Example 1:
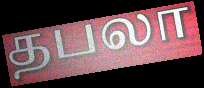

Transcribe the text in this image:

தபலா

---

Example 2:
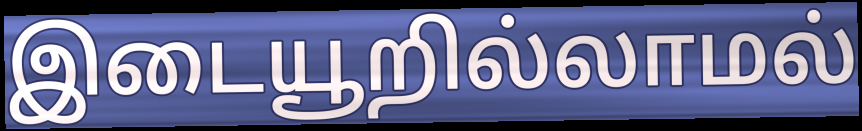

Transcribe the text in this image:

இடையூறில்லாமல்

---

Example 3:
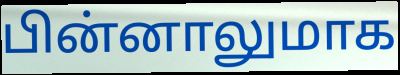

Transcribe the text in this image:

பின்னாலுமாக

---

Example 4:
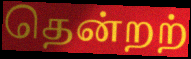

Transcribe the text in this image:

தென்றற்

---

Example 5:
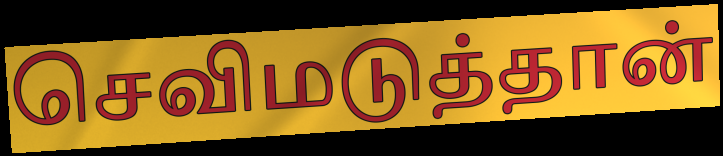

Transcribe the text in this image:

செவிமடுத்தான்